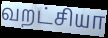
வறட்சியா